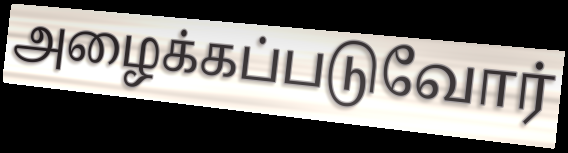
அழைக்கப்படுவோர்